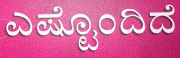
ಎಷ್ಟೊಂದಿದೆ